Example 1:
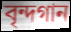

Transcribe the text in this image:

বৃন্দগান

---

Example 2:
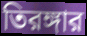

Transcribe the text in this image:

তিরঙ্গার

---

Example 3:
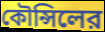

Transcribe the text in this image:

কৌন্সিলের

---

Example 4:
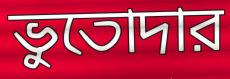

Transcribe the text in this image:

ভুতোদার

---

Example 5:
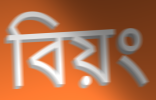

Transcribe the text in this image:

বিয়ং